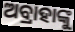
ଅବ୍ରାହାଙ୍କୁ